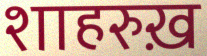
शाहरुख़